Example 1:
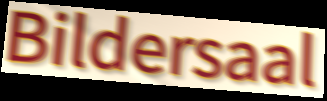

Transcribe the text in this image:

Bildersaal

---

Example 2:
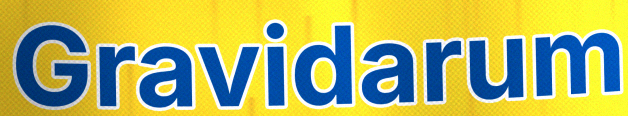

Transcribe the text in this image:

Gravidarum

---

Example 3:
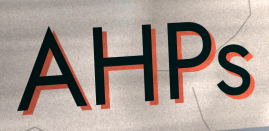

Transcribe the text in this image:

AHPs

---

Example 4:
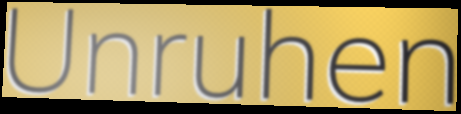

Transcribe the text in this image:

Unruhen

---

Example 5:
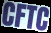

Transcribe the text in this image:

CFTC